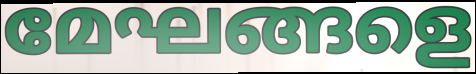
മേഘങ്ങളെ